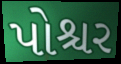
પોશ્ચર